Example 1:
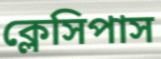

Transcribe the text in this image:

ক্লেসিপাস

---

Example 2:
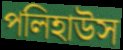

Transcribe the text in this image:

পলিহাউস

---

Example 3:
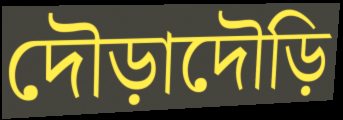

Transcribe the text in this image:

দৌড়াদৌড়ি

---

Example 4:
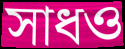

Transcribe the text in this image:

সাধও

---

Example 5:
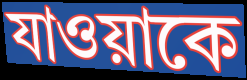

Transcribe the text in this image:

যাওয়াকে